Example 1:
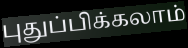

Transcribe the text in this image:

புதுப்பிக்கலாம்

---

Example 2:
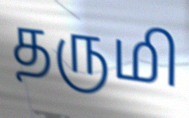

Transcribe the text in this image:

தருமி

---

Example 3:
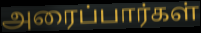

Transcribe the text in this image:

அரைப்பார்கள்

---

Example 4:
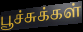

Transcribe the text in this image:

பூச்சுக்கள்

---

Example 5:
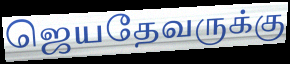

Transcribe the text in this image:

ஜெயதேவருக்கு